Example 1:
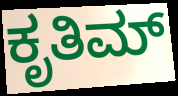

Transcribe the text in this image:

ಕೃತಿಮ್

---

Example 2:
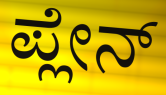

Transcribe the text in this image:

ಪ್ಲೇನ್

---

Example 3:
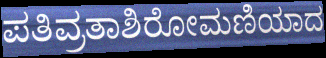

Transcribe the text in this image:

ಪತಿವ್ರತಾಶಿರೋಮಣಿಯಾದ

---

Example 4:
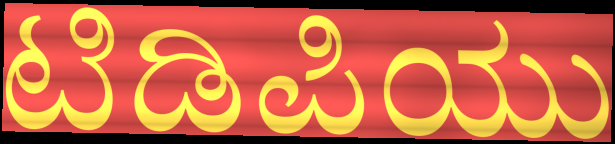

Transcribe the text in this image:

ಟಿಡಿಪಿಯು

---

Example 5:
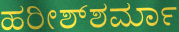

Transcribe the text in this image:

ಹರೀಶ್‌ಶರ್ಮಾ